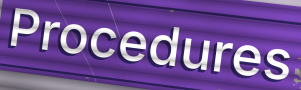
Procedures